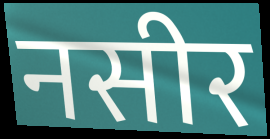
नसीर